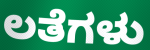
ಲತೆಗಳು